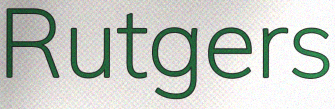
Rutgers